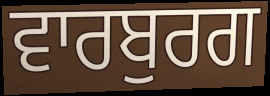
ਵਾਰਬੁਰਗ